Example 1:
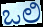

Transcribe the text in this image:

ಒಲಿ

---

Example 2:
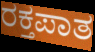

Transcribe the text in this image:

ರಕ್ತಪಾತ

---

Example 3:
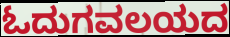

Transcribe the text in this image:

ಓದುಗವಲಯದ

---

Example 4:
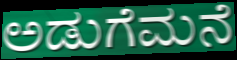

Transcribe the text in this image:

ಅಡುಗೆಮನೆ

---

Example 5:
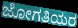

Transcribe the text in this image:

ಜೋಗತಿಯರ